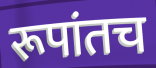
रूपांतच